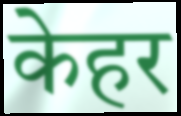
केहर